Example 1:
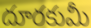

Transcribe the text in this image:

దూరకుమీ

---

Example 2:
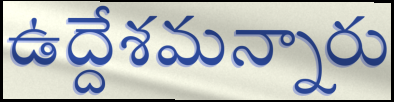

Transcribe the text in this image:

ఉద్దేశమన్నారు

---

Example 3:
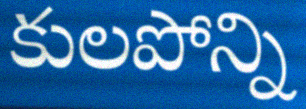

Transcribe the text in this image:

కులపోన్ని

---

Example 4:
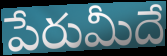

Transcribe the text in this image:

పేరుమీదే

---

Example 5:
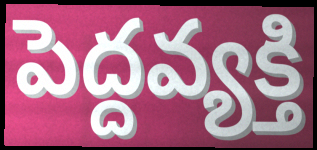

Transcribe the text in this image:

పెద్దవ్యక్తి